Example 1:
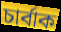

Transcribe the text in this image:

চার্বাক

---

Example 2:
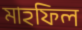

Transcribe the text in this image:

মাহফিল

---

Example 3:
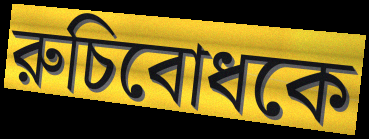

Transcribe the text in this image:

রুচিবোধকে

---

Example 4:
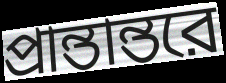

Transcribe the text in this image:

প্রান্তান্তরে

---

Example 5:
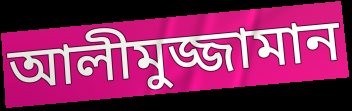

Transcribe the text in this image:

আলীমুজ্জামান